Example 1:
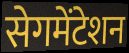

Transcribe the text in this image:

सेगमेंटेशन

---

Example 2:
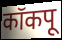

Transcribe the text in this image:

कॉकपू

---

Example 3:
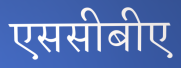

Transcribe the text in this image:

एससीबीए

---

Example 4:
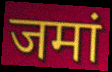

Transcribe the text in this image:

जमां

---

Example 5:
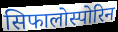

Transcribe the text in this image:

सिफालोस्पोरिन